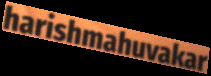
harishmahuvakar